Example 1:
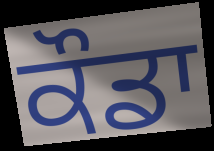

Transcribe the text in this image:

ਕੌਡਾ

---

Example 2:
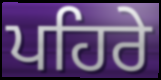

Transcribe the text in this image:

ਪਹਿਰੇ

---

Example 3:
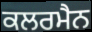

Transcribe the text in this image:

ਕਲਰਮੈਨ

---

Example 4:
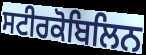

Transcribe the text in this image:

ਸਟੀਰਕੋਬਿਲਿਨ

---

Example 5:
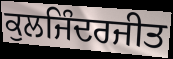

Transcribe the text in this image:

ਕੁਲਜਿੰਦਰਜੀਤ